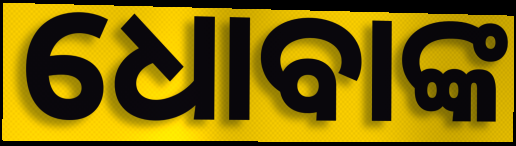
ଧୋବାଙ୍କ